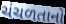
ચંચળતાનો